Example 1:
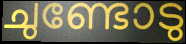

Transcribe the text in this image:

ചുണ്ടോടു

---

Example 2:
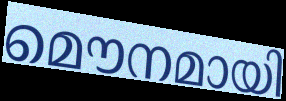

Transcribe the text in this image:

മൌനമായി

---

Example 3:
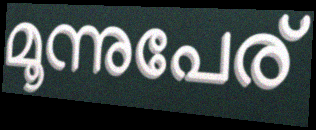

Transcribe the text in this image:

മൂന്നുപേര്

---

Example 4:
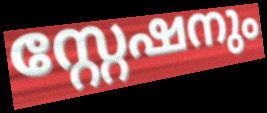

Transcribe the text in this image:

സ്റ്റേഷനും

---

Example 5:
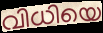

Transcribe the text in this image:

വിധിയെ